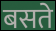
बसते